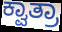
ಕ್ವಾತ್ರಾ